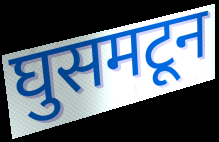
घुसमटून